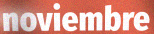
noviembre